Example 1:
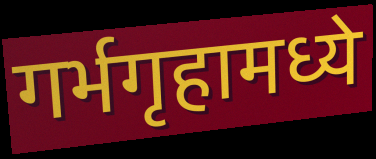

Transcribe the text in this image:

गर्भगृहामध्ये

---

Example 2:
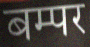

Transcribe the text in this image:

बम्पर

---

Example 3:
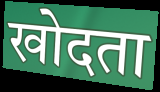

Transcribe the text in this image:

खोदता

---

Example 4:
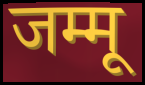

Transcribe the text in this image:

जम्मू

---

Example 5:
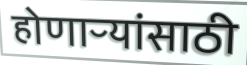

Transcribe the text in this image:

होणाऱ्यांसाठी